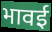
भावई